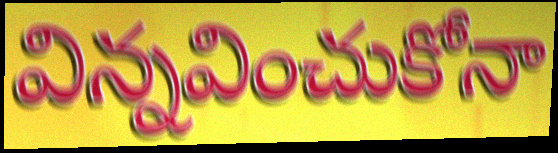
విన్నవించుకోనా